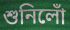
শুনিলোঁ